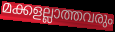
മക്കളല്ലാത്തവരും